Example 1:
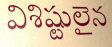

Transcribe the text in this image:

విశిష్టులైన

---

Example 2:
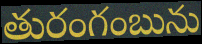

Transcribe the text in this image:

తురంగంబును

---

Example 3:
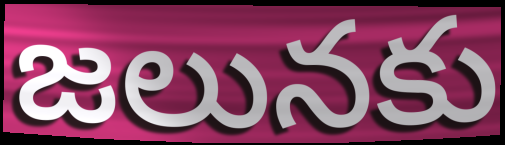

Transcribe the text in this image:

జలునకు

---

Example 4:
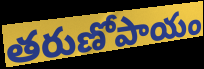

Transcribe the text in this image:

తరుణోపాయం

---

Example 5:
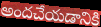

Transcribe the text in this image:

అందచేయడానికి